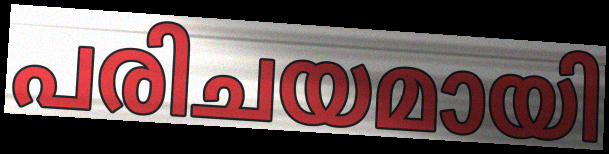
പരിചയമായി